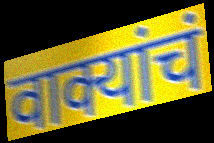
वाक्यांचं